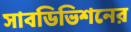
সাবডিভিশনের